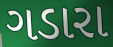
ગડારા